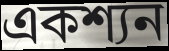
একশ্যন